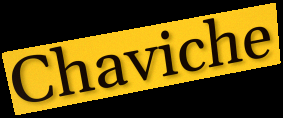
Chaviche